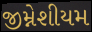
જીમ્નેશીયમ